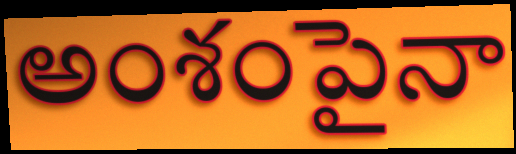
అంశంపైనా